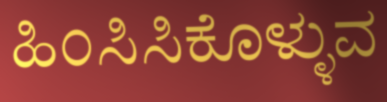
ಹಿಂಸಿಸಿಕೊಳ್ಳುವ